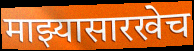
माझ्यासारखेच